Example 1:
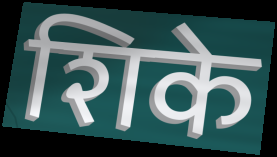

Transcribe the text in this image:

शिके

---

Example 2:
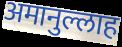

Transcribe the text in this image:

अमानुल्लाह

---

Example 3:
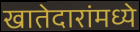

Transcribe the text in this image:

खातेदारांमध्ये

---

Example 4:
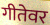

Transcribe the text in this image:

गीतेवर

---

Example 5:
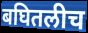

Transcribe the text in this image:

बघितलीच